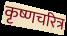
कृष्णचरित्र